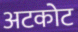
अटकोट